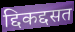
द्दिकद्दसत